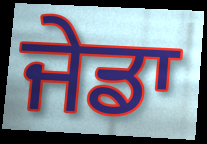
ਜੇਡਾ